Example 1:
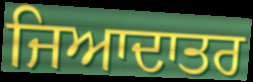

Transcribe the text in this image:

ਜਿਆਦਾਤਰ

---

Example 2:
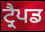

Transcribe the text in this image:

ਟ੍ਰੈਪਡ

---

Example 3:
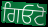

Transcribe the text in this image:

ਗਿਓਟੋ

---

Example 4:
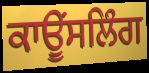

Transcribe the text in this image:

ਕਾਊਂਸਲਿੰਗ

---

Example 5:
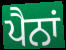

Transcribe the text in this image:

ਪੈਨਾਂ